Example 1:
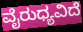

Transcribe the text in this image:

ವೈರುಧ್ಯವಿದೆ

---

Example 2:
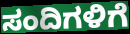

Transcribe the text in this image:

ಸಂದಿಗಳಿಗೆ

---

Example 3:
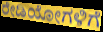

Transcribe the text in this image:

ರೇಡಿಯೋಗಳಿಗೆ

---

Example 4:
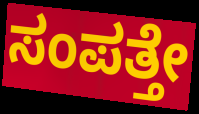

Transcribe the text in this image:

ಸಂಪತ್ತೇ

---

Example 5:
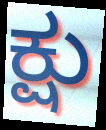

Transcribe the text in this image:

ಕ್ಷು